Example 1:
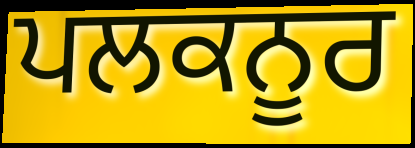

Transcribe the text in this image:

ਪਲਕਨੂਰ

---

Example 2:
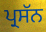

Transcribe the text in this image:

ਪ੍ਰਸੱਨ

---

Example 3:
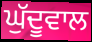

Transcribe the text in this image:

ਘੁੱਦੂਵਾਲ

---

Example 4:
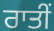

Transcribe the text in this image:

ਰਾਤੀਂ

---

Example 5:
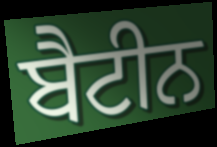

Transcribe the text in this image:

ਬੈਟੀਨ